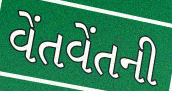
વેંતવેંતની